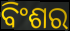
ବିଂଶର